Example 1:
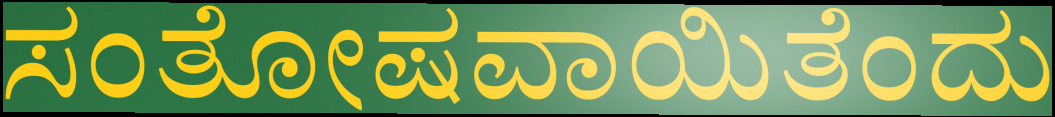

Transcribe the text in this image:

ಸಂತೋಷವಾಯಿತೆಂದು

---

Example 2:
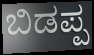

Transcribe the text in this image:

ಬಿಡಪ್ಪ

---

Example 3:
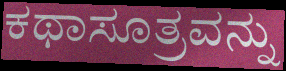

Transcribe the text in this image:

ಕಥಾಸೂತ್ರವನ್ನು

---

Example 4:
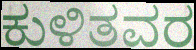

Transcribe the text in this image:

ಕುಳಿತವರ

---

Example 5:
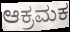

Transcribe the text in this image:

ಆಕ್ರಮಕ